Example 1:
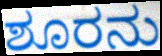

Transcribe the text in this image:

ಶೂರನು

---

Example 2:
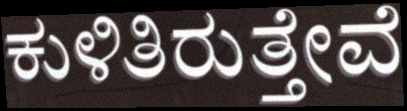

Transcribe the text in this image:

ಕುಳಿತಿರುತ್ತೇವೆ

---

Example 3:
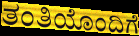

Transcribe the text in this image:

ತಂತಿಯೊಂದಿಗೆ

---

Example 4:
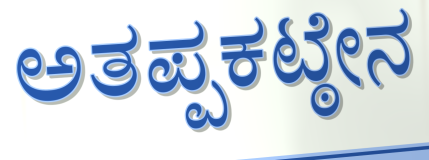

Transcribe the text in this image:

ಅತಪ್ಪಕಟ್ಠೇನ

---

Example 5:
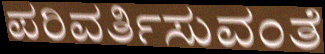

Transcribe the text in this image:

ಪರಿವರ್ತಿಸುವಂತೆ